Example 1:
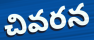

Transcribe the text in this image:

చివరన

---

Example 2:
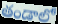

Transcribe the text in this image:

తండాలో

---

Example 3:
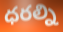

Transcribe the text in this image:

ధరల్ని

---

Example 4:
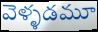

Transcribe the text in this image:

వెళ్ళడమూ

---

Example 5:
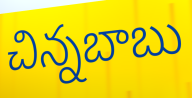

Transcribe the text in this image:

చిన్నబాబు